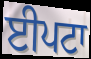
ਈਪਟਾ